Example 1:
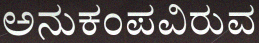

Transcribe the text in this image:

ಅನುಕಂಪವಿರುವ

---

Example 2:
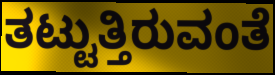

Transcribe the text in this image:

ತಟ್ಟುತ್ತಿರುವಂತೆ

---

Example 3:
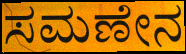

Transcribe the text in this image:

ಸಮಣೇನ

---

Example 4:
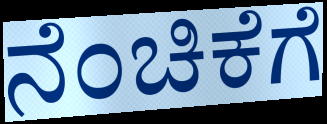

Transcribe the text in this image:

ನೆಂಚಿಕೆಗೆ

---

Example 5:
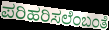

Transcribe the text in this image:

ಪರಿಹರಿಸಲೆಂಬಂತೆ